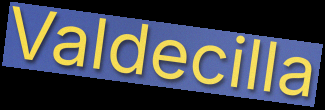
Valdecilla